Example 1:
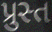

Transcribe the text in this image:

પ્રુસ્ત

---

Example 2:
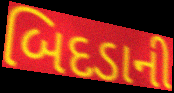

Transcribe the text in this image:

બિદડાની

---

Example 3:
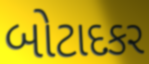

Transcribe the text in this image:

બોટાદકર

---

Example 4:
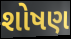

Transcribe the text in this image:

શોષણ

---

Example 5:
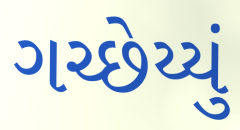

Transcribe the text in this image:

ગચ્છેય્યું